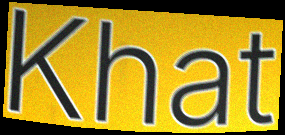
Khat